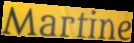
Martine